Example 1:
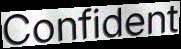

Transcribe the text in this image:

Confident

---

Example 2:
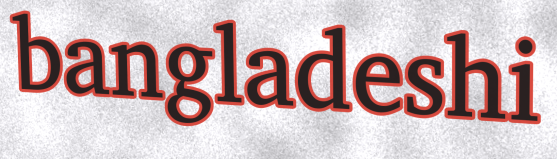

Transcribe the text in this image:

bangladeshi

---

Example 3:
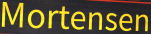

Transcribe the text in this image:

Mortensen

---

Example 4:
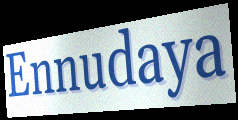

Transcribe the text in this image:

Ennudaya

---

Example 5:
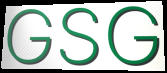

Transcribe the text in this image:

GSG